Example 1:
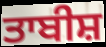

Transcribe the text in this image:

ਤਾਬੀਸ਼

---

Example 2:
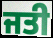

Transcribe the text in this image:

ਜਤੀ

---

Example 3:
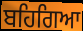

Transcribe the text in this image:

ਬਹਿਗਿਆ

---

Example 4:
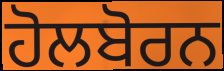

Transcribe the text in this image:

ਹੋਲਬੋਰਨ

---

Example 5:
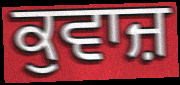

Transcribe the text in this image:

ਕੁਵਾਜ਼